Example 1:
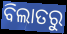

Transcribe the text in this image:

ବିଲାତରୁ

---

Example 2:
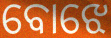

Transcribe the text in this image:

ବୋଝେ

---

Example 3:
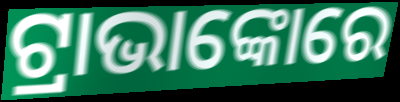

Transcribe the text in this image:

ଟ୍ରାଭାଙ୍କୋରେ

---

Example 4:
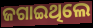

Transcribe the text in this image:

ଜଗାଇଥିଲେ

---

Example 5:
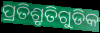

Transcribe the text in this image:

ପ୍ରତିଶ୍ରୃତିଗୁଡିକ